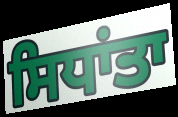
ਸਿਧਾਂਤਾ